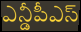
ఎన్డీపీఎస్